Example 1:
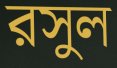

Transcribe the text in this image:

রসুল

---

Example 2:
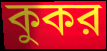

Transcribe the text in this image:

কুকর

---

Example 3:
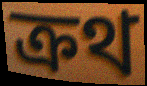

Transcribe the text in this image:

ক্রথ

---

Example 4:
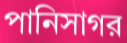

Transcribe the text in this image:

পানিসাগর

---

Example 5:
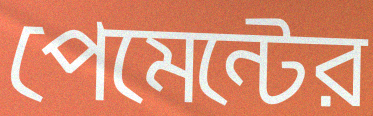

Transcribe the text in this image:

পেমেন্টের